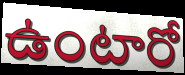
ఉంటారో